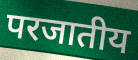
परजातीय